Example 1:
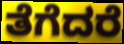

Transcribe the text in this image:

ತೆಗೆದರೆ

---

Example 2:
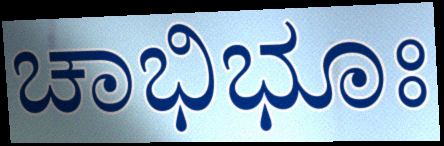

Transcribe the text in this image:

ಚಾಭಿಭೂಃ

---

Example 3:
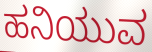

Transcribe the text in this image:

ಹನಿಯುವ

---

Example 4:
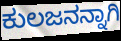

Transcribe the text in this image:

ಕುಲಜನನ್ನಾಗಿ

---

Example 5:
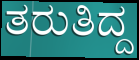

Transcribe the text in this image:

ತರುತಿದ್ದ